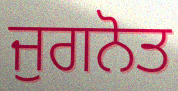
ਜੁਗਨੋਤ